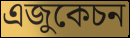
এজুকেচন